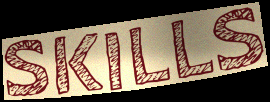
SKILLS